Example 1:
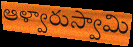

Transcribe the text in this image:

ఆళ్వారుస్వామి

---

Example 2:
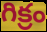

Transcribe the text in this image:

గిక్రం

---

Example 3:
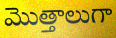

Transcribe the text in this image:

మొత్తాలుగా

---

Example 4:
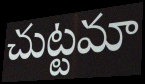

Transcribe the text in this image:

చుట్టమా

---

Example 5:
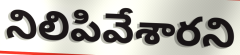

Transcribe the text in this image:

నిలిపివేశారని